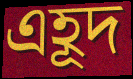
এহূদ